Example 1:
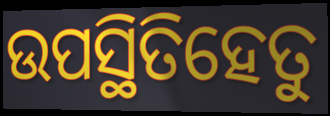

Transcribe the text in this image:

ଉପସ୍ଥିତିହେତୁ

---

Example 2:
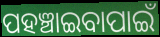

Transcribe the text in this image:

ପହଞ୍ଚାଇବାପାଇଁ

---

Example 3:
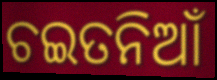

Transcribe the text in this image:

ଚଇତନିଆଁ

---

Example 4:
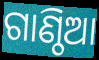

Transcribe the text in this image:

ଗାଣ୍ଠିଆ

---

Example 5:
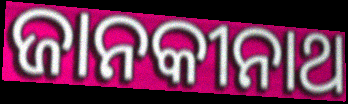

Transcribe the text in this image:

ଜାନକୀନାଥ